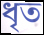
ধৃত